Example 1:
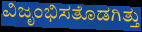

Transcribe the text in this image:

ವಿಜೃಂಭಿಸತೊಡಗಿತ್ತು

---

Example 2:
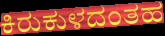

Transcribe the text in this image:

ಕಿರುಕುಳದಂತಹ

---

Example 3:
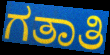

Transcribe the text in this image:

ಗತಾತಿ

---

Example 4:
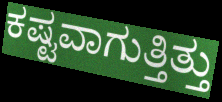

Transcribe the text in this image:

ಕಷ್ಟವಾಗುತ್ತಿತ್ತು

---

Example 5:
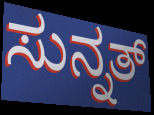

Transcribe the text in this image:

ಸುನ್ನತ್